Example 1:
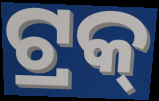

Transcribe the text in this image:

ଟ୍ରକ୍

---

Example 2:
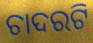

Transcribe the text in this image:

ଚାଦରଟି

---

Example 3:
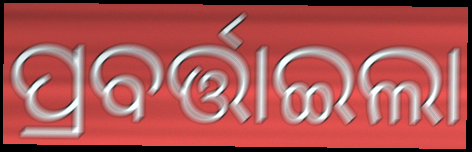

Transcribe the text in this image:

ପ୍ରବର୍ତ୍ତାଇଲା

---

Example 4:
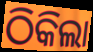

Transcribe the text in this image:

ଠିକିଲା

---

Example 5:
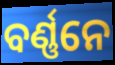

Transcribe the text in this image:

ବର୍ଣ୍ଣନେ